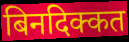
बिनदिक्कत